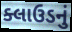
ક્લાઉડનું